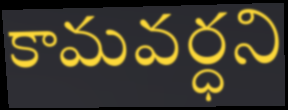
కామవర్ధని